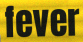
fever